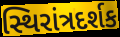
સ્થિરાંત્રદર્શક